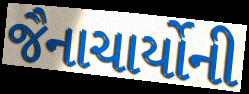
જૈનાચાર્યોની